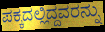
ಪಕ್ಕದಲ್ಲಿದ್ದವರನ್ನು